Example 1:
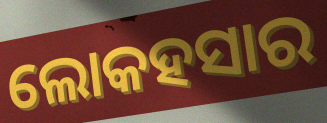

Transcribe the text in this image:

ଲୋକହସାର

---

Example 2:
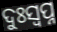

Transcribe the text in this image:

ଦୁଃସ୍ଵପ୍ନ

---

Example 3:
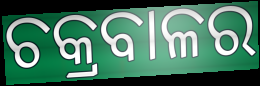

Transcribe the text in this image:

ଚକ୍ରବାଳର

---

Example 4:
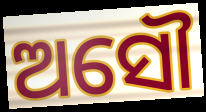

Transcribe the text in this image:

ଅସୌ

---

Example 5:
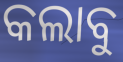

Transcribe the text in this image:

କଲାବୁ